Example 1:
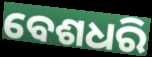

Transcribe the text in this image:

ବେଶଧରି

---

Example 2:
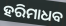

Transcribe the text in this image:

ହରିମାଧବ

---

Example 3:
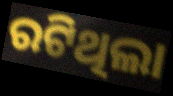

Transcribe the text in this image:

ରଟିଥିଲା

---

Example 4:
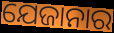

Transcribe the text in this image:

ଯେଜାନାର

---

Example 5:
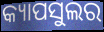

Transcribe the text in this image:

କ୍ୟାପସୁଲର